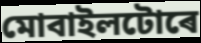
মোবাইলটোৰে